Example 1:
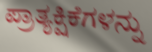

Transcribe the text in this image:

ಪ್ರಾತ್ಯಕ್ಷಿಕೆಗಳನ್ನು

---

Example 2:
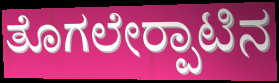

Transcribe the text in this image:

ತೊಗಲೇರ‍್ಪಾಟಿನ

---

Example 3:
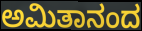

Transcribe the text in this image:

ಅಮಿತಾನಂದ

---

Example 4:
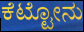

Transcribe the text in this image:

ಕೆಟ್ಟೋನು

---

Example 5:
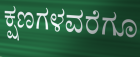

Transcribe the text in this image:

ಕ್ಷಣಗಳವರೆಗೂ